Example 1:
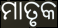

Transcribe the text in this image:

ମାତୃକ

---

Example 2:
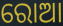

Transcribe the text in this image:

ରୋଆ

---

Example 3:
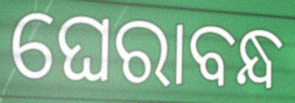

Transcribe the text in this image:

ଘେରାବନ୍ଧ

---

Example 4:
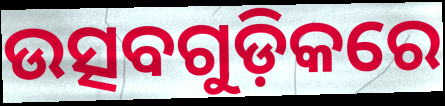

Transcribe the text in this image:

ଉତ୍ସବଗୁଡ଼ିକରେ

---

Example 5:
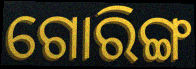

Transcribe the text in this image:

ଗୋରିଙ୍ଗ